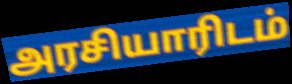
அரசியாரிடம்